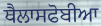
ਥੈਲਾਸਫੋਬੀਆ